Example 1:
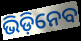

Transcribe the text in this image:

ଭିଡ଼ିନେବ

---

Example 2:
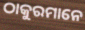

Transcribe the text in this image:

ଠାକୁରମାନେ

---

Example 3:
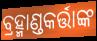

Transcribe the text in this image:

ବ୍ରହ୍ମାଣ୍ଡକର୍ତ୍ତାଙ୍କ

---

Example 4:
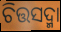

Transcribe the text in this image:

ଚିତ୍ତସଦ୍ମା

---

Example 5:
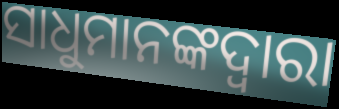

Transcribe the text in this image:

ସାଧୁମାନଙ୍କଦ୍ଵାରା